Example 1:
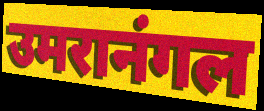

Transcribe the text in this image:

उमरानंगल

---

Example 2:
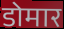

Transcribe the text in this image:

डोमार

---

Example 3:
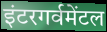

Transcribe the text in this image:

इंटरगर्वमेंटल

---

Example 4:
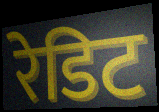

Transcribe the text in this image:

रेडिट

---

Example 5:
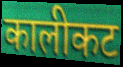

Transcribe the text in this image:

कालीकट